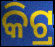
କିଟ୍ର